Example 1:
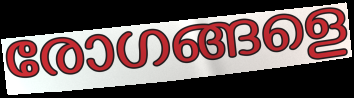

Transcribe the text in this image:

രോഗങ്ങളെ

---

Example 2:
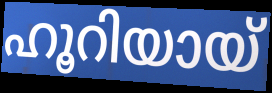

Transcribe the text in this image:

ഹൂറിയായ്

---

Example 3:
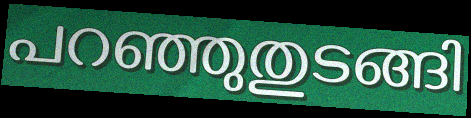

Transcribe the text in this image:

പറഞ്ഞുതുടങ്ങി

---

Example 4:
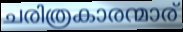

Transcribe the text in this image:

ചരിത്രകാരന്മാര്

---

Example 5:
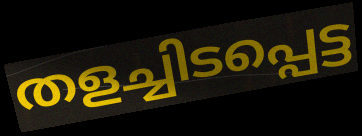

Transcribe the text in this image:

തളച്ചിടപ്പെട്ട